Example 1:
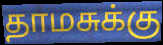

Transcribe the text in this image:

தாமசுக்கு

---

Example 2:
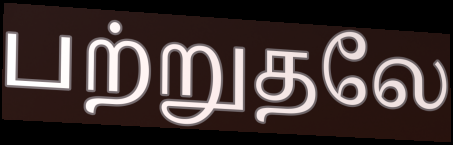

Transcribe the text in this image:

பற்றுதலே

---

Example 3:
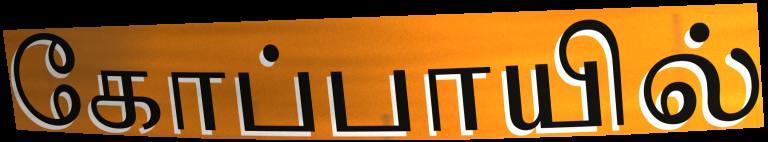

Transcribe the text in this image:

கோப்பாயில்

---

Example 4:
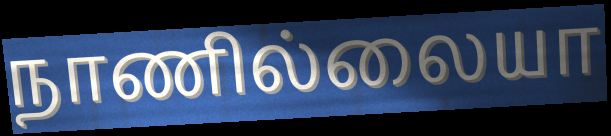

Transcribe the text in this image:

நாணில்லையா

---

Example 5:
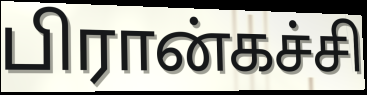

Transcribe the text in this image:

பிரான்கச்சி